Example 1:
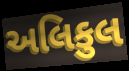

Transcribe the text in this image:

અલિકુલ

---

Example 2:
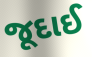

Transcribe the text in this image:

જૂદાઈ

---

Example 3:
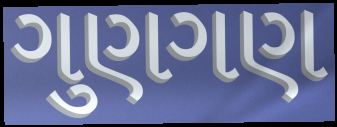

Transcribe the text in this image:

ગુણગણ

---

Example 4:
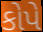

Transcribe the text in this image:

કોપે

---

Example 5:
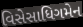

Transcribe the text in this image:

વિસેસાધિગમેન